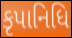
કૃપાનિધિ